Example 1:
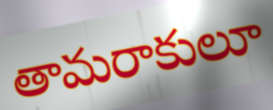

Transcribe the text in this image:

తామరాకులూ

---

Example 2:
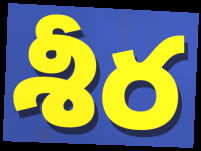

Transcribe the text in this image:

శీర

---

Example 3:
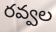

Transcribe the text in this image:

రవ్వల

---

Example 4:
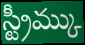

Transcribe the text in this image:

స్ట్రీమ్కు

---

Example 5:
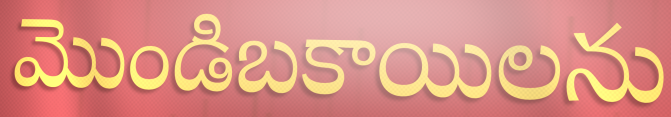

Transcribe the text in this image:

మొండిబకాయిలను